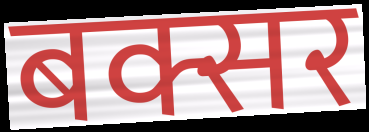
बक्सर